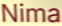
Nima